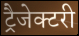
ट्रैजेक्टरी